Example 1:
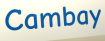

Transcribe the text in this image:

Cambay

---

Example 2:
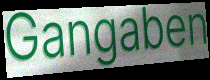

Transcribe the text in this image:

Gangaben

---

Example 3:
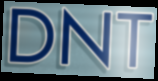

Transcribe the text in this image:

DNT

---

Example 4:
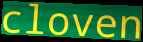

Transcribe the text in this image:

cloven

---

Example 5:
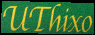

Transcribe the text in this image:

UThixo